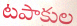
టపాకుల